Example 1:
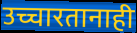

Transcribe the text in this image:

उच्चारतानाही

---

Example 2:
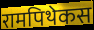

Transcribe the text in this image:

रामपिथेकस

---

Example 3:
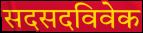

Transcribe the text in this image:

सदसदविवेक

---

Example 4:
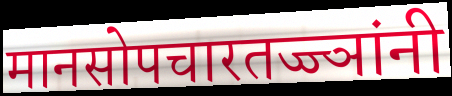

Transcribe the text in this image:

मानसोपचारतज्ज्ञांनी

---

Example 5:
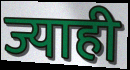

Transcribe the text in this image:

ज्याही